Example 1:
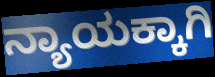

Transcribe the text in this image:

ನ್ಯಾಯಕ್ಕಾಗಿ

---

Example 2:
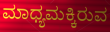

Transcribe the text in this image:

ಮಾಧ್ಯಮಕ್ಕಿರುವ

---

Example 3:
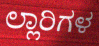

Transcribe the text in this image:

ಲ್ಲಾರಿಗಳ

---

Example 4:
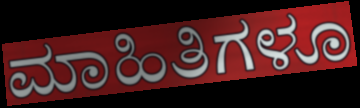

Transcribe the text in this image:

ಮಾಹಿತಿಗಳೂ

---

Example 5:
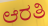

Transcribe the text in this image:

ಆರತಿ